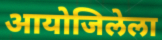
आयोजिलेला